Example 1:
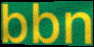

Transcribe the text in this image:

bbn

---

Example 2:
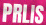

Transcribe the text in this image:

PRLIS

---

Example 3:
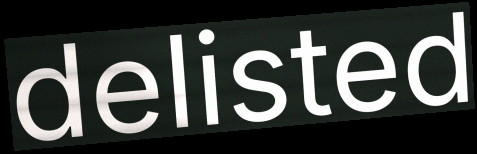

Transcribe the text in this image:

delisted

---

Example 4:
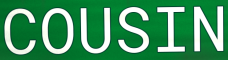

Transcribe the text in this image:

COUSIN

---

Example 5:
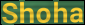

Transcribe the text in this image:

Shoha